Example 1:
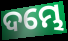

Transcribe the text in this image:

ଦମ୍ଭେ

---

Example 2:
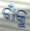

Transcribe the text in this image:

ବାଁକୁ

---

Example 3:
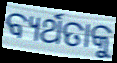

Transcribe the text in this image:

ବ୍ୟର୍ଥତାକୁ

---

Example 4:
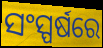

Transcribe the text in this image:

ସଂସ୍ପର୍ଷରେ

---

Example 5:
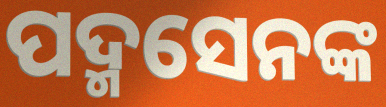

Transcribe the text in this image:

ପଦ୍ମସେନଙ୍କ